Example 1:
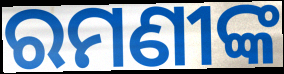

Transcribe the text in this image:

ରମଣୀଙ୍କ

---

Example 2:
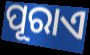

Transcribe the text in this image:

ପୂରାଏ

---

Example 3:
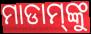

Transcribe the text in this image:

ମାଡାମ୍‌ଙ୍କୁ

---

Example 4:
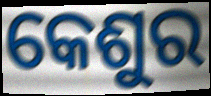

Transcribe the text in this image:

କେଶୁର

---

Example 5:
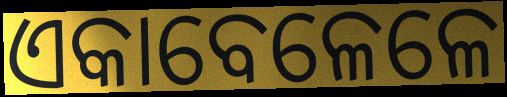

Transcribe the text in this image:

ଏକାବେଳେଳେ